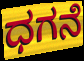
ಧಗನೆ